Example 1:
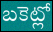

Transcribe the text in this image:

బకెట్లో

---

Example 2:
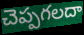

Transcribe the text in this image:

చెప్పగలదా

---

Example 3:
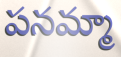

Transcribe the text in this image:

పనమ్మా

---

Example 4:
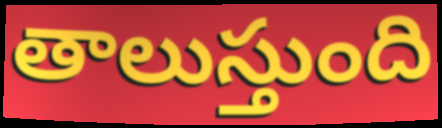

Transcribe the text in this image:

తాలుస్తుంది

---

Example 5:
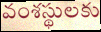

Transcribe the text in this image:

వంశస్థులకు